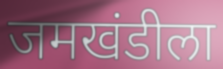
जमखंडीला